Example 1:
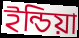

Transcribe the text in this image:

ইন্ডিয়া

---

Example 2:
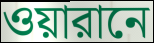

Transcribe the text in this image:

ওয়ারানে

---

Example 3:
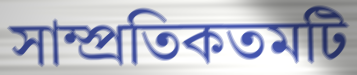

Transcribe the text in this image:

সাম্প্রতিকতমটি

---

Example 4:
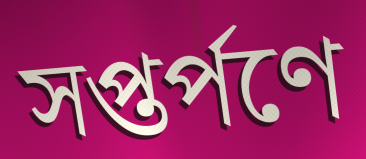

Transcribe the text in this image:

সপ্তর্পণে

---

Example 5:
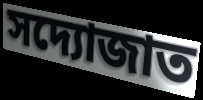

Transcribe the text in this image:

সদ্যোজাত